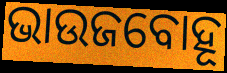
ଭାଉଜବୋହୂ